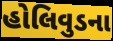
હોલિવુડના